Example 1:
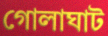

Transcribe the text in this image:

গোলাঘাট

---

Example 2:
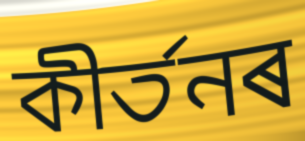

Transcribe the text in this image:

কীৰ্তনৰ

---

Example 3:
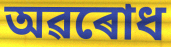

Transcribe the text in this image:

অৱৰোধ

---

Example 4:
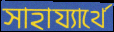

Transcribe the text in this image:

সাহায্যাৰ্থে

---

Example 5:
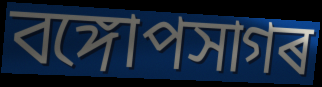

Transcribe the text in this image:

বঙ্গোপসাগৰ